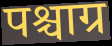
पश्चाग्र